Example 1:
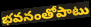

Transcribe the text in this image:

భవనంతోపాటు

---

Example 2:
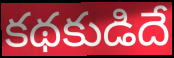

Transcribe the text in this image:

కథకుడిదే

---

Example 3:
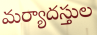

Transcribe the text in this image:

మర్యాదస్తుల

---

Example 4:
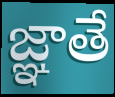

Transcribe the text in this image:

జ్ఞాతే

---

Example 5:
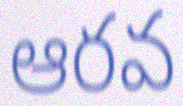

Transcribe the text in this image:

ఆరవ